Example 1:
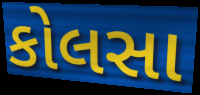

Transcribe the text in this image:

કોલસા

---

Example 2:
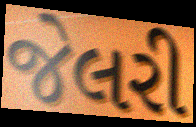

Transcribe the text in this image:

જેલરી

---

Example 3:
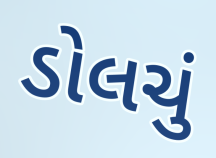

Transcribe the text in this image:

ડોલચું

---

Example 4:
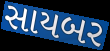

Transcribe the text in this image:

સાયબર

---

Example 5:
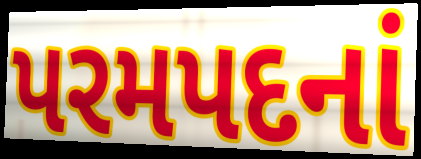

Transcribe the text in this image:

પરમપદનાં